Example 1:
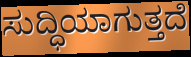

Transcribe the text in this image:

ಸುದ್ಧಿಯಾಗುತ್ತದೆ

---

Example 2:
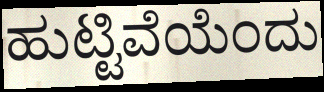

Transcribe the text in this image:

ಹುಟ್ಟಿವೆಯೆಂದು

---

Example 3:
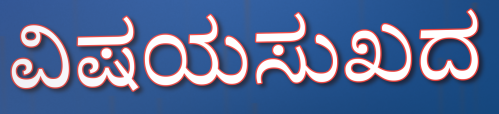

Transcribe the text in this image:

ವಿಷಯಸುಖದ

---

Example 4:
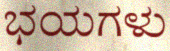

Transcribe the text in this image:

ಭಯಗಳು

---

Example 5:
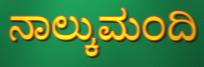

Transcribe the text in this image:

ನಾಲ್ಕುಮಂದಿ